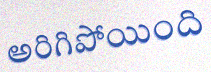
అరిగిపోయింది